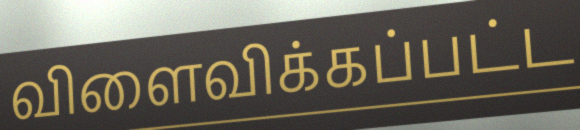
விளைவிக்கப்பட்ட